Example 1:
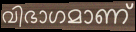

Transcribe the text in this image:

വിഭാഗമാണ്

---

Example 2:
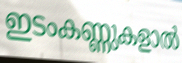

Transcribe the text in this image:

ഇടംകണ്ണുകളാൽ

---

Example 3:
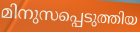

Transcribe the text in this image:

മിനുസപ്പെടുത്തിയ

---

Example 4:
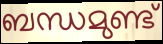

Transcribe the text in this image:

ബന്ധമുണ്ട്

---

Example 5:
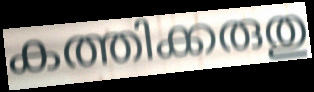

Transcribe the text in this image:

കത്തിക്കരുതു